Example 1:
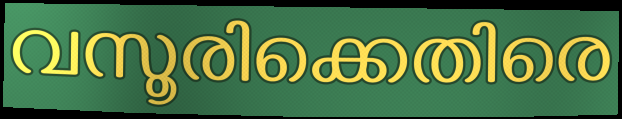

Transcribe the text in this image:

വസൂരിക്കെതിരെ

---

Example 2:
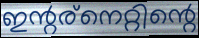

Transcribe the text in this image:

ഇന്റര്നെറ്റിന്റെ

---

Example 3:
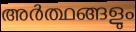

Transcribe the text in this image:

അർത്ഥങ്ങളും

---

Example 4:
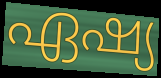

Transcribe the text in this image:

ഏഷ്യ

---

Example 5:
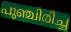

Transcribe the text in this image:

പുഞ്ചിരിച്ച